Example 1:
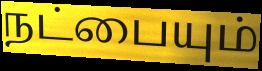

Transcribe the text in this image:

நட்பையும்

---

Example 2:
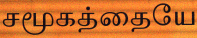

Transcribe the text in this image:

சமூகத்தையே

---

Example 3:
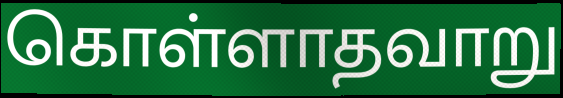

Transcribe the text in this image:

கொள்ளாதவாறு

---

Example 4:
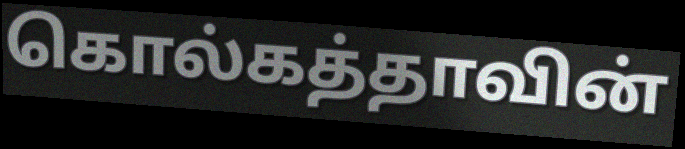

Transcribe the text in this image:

கொல்கத்தாவின்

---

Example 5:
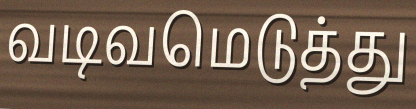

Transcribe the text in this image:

வடிவமெடுத்து